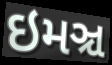
ઇમઞ્ચ